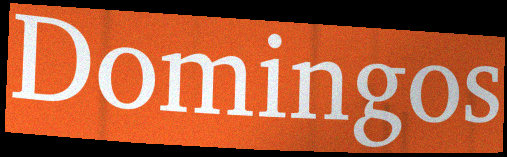
Domingos